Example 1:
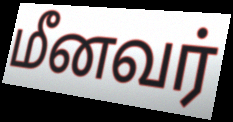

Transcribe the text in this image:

மீனவர்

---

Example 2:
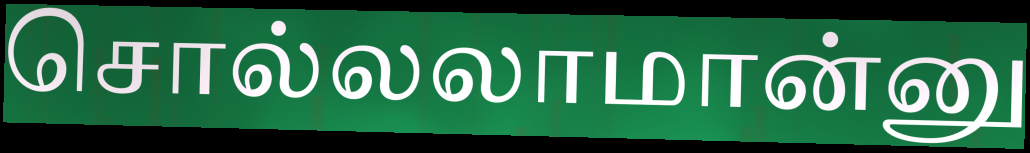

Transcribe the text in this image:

சொல்லலாமான்னு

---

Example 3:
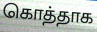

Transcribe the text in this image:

கொத்தாக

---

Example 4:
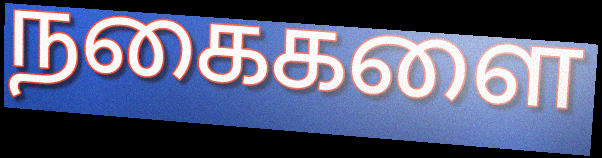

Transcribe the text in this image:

நகைகளை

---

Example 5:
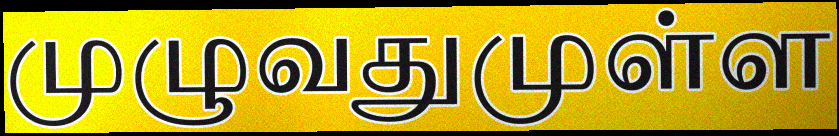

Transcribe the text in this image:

முழுவதுமுள்ள